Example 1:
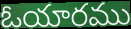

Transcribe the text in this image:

ఓయారము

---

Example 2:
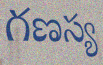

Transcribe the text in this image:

గణస్య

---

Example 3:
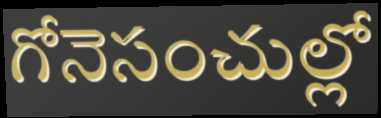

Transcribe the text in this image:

గోనెసంచుల్లో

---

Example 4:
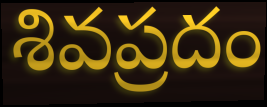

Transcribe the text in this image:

శివప్రదం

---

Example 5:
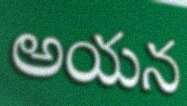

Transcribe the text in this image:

అయన